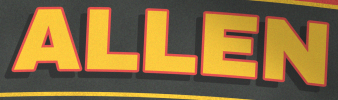
ALLEN